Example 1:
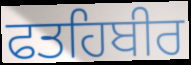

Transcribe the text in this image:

ਫਤਹਿਬੀਰ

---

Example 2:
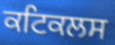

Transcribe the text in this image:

ਕਟਿਕਲਸ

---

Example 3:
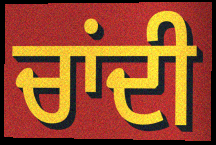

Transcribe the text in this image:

ਚਾਂਦੀ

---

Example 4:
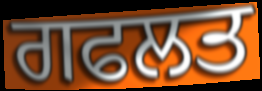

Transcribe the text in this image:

ਗਫਲਤ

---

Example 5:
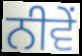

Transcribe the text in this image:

ਨੀਵੇਂ